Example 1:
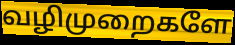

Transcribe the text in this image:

வழிமுறைகளே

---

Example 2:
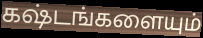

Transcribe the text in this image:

கஷ்டங்களையும்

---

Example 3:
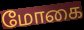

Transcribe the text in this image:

மோகை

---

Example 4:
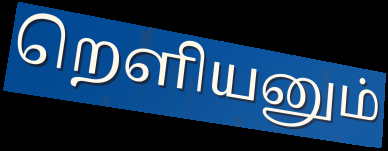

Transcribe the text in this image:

றெளியனும்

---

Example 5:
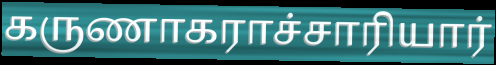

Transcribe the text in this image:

கருணாகராச்சாரியார்